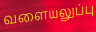
வளையலுப்பு